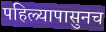
पहिल्यापासुनच